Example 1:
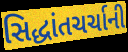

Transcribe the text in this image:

સિદ્ધાંતચર્ચાની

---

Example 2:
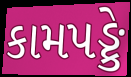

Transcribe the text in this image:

કામપઙ્કે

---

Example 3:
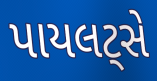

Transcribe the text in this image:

પાયલટ્સે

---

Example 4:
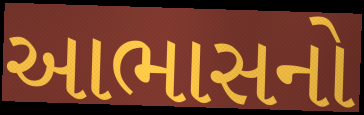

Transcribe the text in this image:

આભાસનો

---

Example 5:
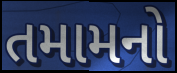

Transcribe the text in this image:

તમામનો